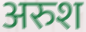
अरुश